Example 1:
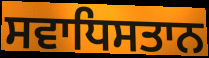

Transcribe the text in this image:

ਸਵਾਧਿਸਤਾਨ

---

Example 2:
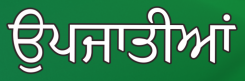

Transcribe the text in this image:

ਉਪਜਾਤੀਆਂ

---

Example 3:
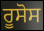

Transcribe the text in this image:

ਰੂਸੋਸ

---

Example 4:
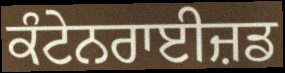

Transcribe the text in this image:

ਕੰਟੇਨਰਾਈਜ਼ਡ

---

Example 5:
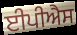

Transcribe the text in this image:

ਈਪੀਐਸ